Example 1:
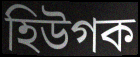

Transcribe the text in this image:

হিউগক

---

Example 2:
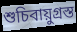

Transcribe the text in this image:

শুচিবায়ুগ্ৰস্ত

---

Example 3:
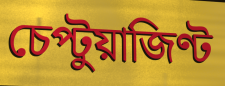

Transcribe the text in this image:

চেপ্টুয়াজিণ্ট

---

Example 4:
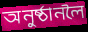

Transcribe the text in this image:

অনুষ্ঠানলৈ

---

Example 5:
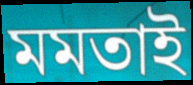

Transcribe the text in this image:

মমতাই